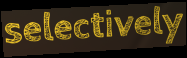
selectively